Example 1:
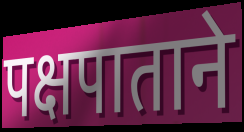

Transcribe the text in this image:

पक्षपाताने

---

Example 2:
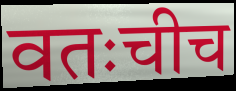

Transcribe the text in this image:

वतःचीच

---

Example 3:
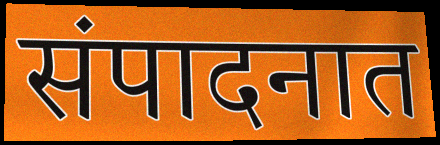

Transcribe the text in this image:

संपादनात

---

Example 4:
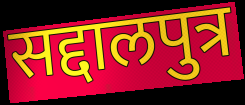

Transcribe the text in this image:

सद्दालपुत्र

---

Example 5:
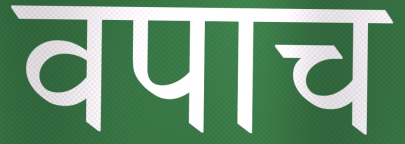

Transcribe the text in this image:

वपाच